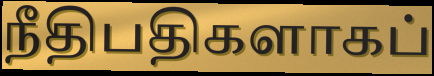
நீதிபதிகளாகப்